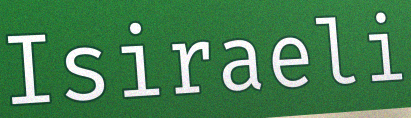
Isiraeli